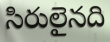
సిరులైనది